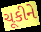
ચૂકીને